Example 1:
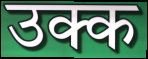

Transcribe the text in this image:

उक्क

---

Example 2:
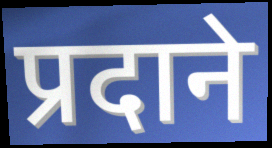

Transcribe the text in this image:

प्रदाने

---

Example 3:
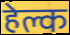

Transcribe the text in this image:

हेल्क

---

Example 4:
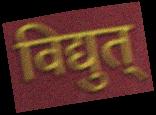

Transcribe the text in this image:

विद्युत्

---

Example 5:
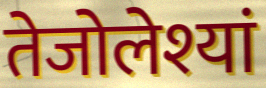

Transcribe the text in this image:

तेजोलेश्यां